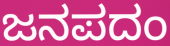
ಜನಪದಂ